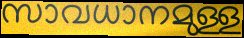
സാവധാനമുള്ള